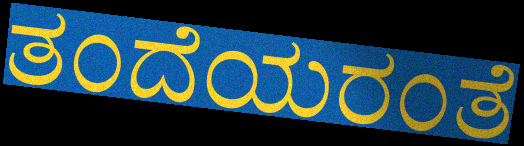
ತಂದೆಯರಂತೆ